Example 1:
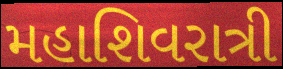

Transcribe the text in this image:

મહાશિવરાત્રી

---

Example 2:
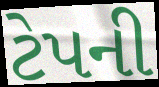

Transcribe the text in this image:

ટેપની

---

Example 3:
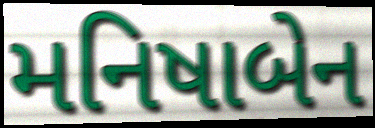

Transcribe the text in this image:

મનિષાબેન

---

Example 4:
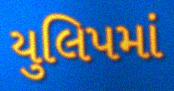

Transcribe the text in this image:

યુલિપમાં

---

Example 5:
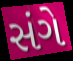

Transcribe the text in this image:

સંગે